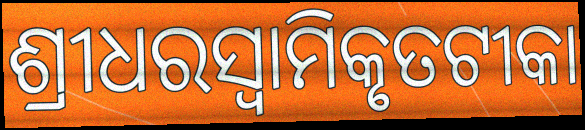
ଶ୍ରୀଧରସ୍ଵାମିକୃତଟୀକା